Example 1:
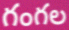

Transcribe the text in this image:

గంగల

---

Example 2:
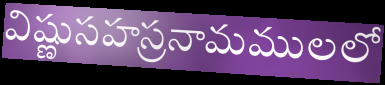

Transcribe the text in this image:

విష్ణుసహస్రనామములలో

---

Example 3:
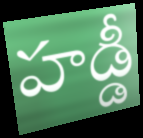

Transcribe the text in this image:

హడ్డీ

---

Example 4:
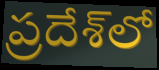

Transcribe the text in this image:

ప్రదేశ్‌లో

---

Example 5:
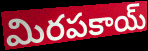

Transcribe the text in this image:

మిరపకాయ్